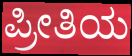
ಪ್ರೀತಿಯ